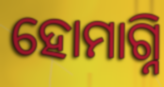
ହୋମାଗ୍ନି